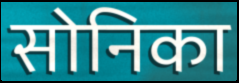
सोनिका